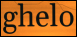
ghelo